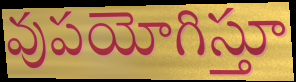
వుపయోగిస్తూ